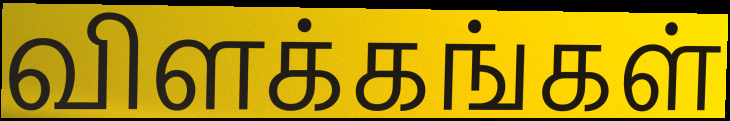
விளக்கங்கள்